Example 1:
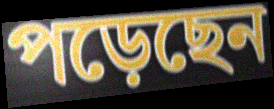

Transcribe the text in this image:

পড়েছেন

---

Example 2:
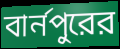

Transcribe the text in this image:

বার্নপুরের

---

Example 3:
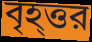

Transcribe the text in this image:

বৃহ্ত্তর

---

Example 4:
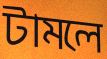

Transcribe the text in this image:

টামলে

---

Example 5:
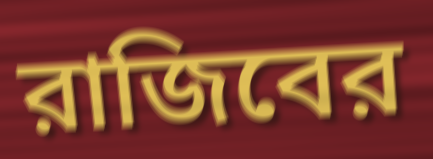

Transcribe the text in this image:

রাজিবের